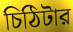
চিঠিটার